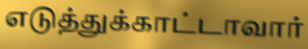
எடுத்துக்காட்டாவார்